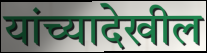
यांच्यादेखील